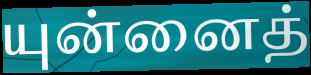
யுன்னைத்